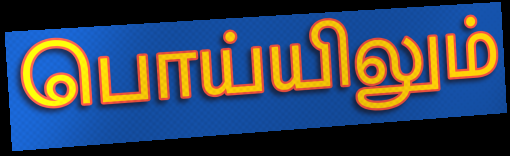
பொய்யிலும்